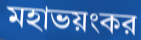
মহাভয়ংকর